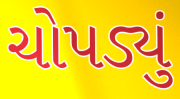
ચોપડ્યું